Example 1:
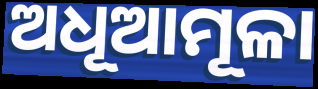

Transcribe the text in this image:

ଅଧୂଆମୂଳା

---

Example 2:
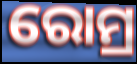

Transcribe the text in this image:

ରୋମ୍ର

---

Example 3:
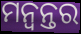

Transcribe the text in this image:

ମନ୍ୱନ୍ତର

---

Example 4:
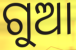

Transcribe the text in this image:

ଗୁଆ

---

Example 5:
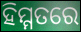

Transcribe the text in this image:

ହିମ୍ମତରେ